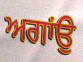
ਅਗਾਂਉ